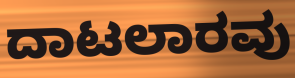
ದಾಟಲಾರವು